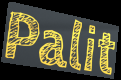
Palit